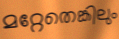
മറ്റേതെങ്കിലും